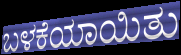
ಬಳಕೆಯಾಯಿತು